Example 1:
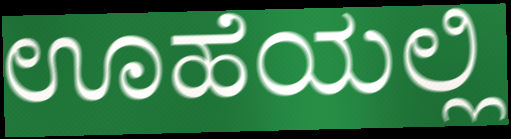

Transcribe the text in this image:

ಊಹೆಯಲ್ಲಿ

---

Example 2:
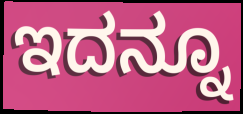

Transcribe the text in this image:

ಇದನ್ನೂ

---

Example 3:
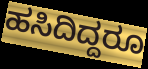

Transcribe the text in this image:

ಹಸಿದಿದ್ದರೂ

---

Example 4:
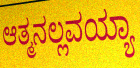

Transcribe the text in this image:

ಆತ್ಮನಲ್ಲವಯ್ಯಾ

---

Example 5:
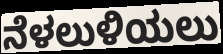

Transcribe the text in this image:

ನೆಳಲುಳಿಯಲು